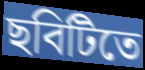
ছবিটিতে